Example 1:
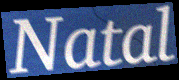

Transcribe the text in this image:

Natal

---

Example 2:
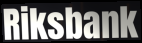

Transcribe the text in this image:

Riksbank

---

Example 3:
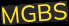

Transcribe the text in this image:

MGBS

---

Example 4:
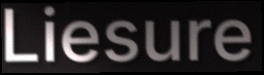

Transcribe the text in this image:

Liesure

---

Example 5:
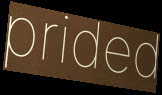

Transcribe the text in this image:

prided